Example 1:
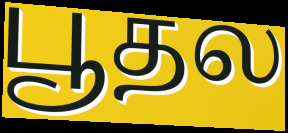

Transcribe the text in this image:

பூதல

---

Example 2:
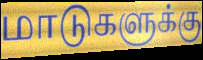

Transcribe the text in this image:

மாடுகளுக்கு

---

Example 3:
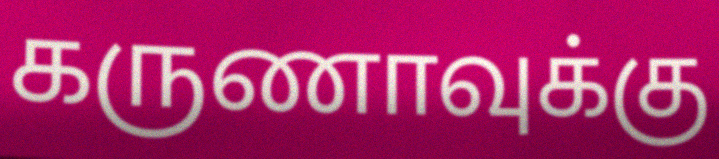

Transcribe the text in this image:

கருணாவுக்கு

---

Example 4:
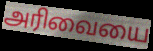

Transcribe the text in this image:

அரிவையை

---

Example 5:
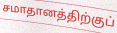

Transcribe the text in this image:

சமாதானத்திற்குப்